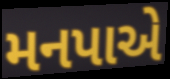
મનપાએ